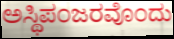
ಅಸ್ಥಿಪಂಜರವೊಂದು